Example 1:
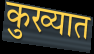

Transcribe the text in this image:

कुख्यात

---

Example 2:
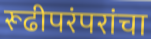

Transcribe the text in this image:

रूढीपरंपरांचा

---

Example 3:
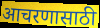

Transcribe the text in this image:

आचरणासाठी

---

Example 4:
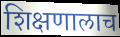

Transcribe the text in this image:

शिक्षणालाच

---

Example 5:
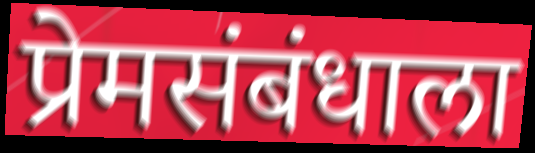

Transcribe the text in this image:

प्रेमसंबंधाला